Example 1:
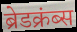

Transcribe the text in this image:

ब्रेडक्रंब्स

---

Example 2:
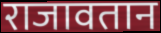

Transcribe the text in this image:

राजावतान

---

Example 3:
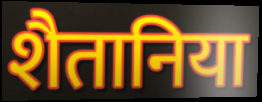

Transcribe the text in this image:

शैतानिया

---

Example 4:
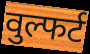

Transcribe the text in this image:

वुल्फर्ट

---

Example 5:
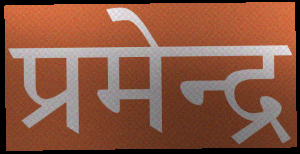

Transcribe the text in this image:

प्रमेन्द्र